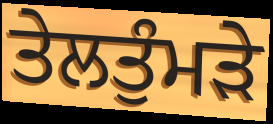
ਤੇਲਤੁੰਮੜੇ